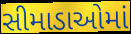
સીમાડાઓમાં